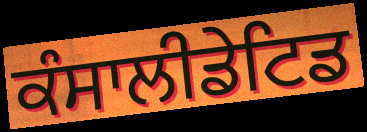
ਕੰਸਾਲੀਡੇਟਿਡ